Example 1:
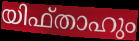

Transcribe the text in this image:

യിഫ്താഹും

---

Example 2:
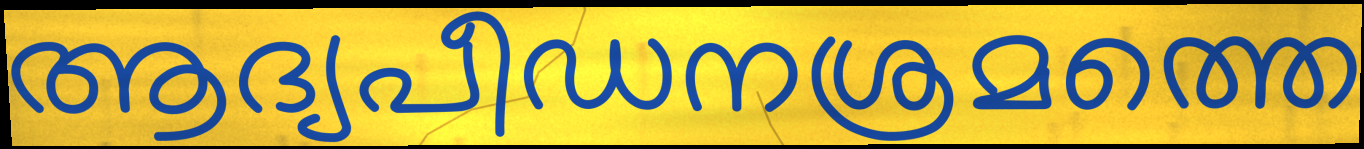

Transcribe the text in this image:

ആദ്യപീഡനശ്രമത്തെ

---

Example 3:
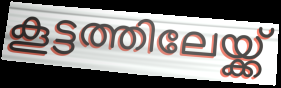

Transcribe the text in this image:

കൂട്ടത്തിലേയ്ക്ക്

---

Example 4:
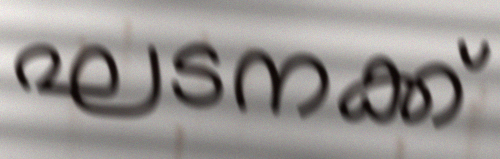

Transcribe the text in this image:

ഘടനക്ക്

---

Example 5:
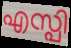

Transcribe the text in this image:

എസ്പി